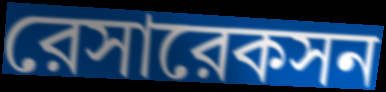
রেসারেকসন